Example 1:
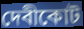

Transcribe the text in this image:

দেবীকোট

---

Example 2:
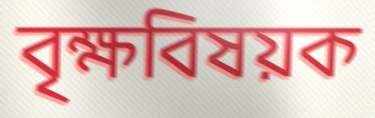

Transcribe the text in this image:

বৃক্ষবিষয়ক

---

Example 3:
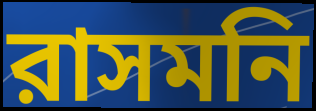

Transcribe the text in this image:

রাসমনি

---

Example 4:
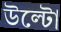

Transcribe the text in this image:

উল্টো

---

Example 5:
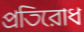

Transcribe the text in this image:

প্রতিরোধ